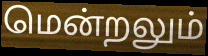
மென்றலும்